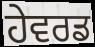
ਹੇਵਰਡ